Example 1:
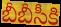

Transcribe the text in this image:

బీబీసీకి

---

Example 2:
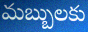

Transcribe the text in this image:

మబ్బులకు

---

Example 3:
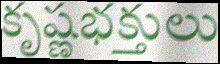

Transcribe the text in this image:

కృష్ణభక్తులు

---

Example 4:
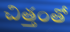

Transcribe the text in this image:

చిత్తంతో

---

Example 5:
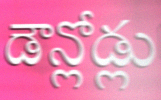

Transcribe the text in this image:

డౌన్లోడ్లు